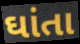
ઘાંતા